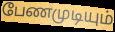
பேணமுடியும்